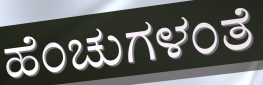
ಹೆಂಚುಗಳಂತೆ